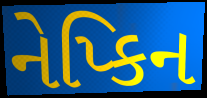
નેપ્કિન